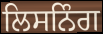
ਲਿਸਨਿੰਗ